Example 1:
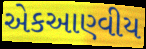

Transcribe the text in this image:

એકઆણ્વીય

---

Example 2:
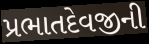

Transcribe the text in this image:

પ્રભાતદેવજીની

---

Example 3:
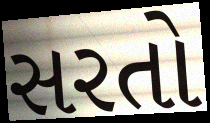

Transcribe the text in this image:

સરતો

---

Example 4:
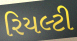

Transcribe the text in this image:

રિયલ્ટી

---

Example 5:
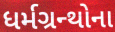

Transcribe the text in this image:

ધર્મગ્રન્થોના